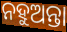
ନହୁଅନ୍ତା